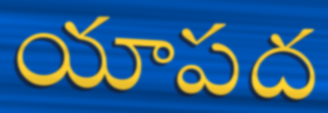
యాపద